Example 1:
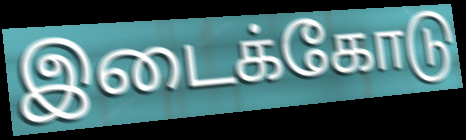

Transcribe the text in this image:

இடைக்கோடு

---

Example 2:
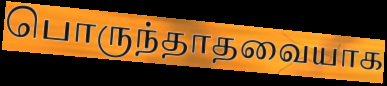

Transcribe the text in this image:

பொருந்தாதவையாக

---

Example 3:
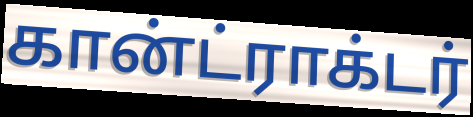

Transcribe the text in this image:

கான்ட்ராக்டர்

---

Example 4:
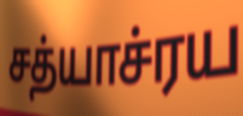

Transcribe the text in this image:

சத்யாச்ரய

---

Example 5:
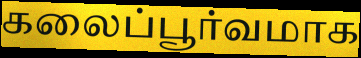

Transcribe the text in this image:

கலைப்பூர்வமாக